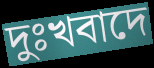
দুঃখবাদে